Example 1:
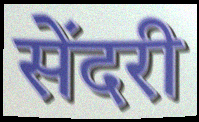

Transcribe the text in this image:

सेंदरी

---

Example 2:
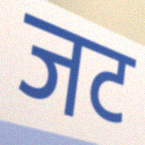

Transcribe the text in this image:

जट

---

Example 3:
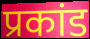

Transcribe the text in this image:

प्रकांड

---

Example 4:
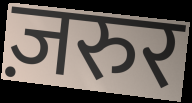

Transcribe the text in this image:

ज़रुर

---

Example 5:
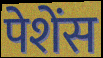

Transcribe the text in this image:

पेशेंस